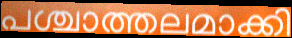
പശ്ചാത്തലമാക്കി